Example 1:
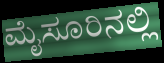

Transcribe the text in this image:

ಮೈಸೂರಿನಲ್ಲಿ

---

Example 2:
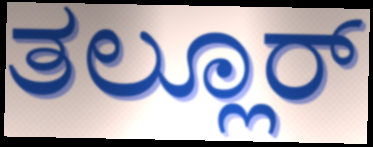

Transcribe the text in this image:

ತಲ್ಲೂರ್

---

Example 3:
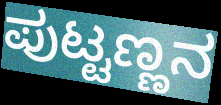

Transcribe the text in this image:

ಪುಟ್ಟಣ್ಣನ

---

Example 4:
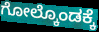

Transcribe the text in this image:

ಗೋಲ್ಕೊಂಡಕ್ಕೆ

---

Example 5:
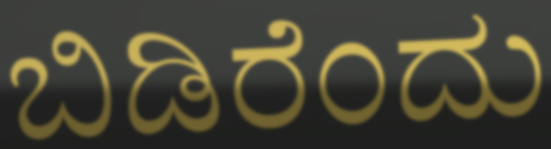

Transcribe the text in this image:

ಬಿಡಿರೆಂದು